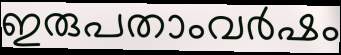
ഇരുപതാംവർഷം